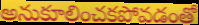
అనుకూలించకపోవడంతో